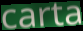
carta